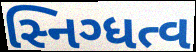
સ્નિગ્ધત્વ